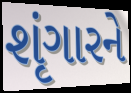
શૃંગારને